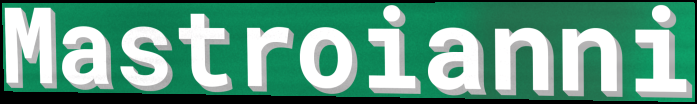
Mastroianni